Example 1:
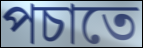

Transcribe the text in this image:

পচাতে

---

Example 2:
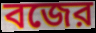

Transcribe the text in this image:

বজের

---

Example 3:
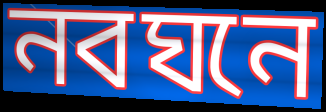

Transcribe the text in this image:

নবঘনে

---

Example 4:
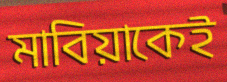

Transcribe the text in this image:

মাবিয়াকেই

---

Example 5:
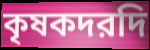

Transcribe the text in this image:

কৃষকদরদি